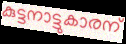
കുട്ടനാട്ടുകാരന്